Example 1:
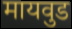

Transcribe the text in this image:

मायवुड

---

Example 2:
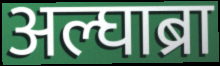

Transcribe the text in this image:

अल्घाब्रा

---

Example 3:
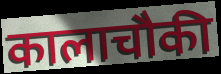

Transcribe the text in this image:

कालाचौकी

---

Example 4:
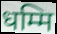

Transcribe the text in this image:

धम्मि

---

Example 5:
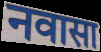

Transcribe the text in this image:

नवासा